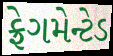
ફ્રેગમેન્ટેડ